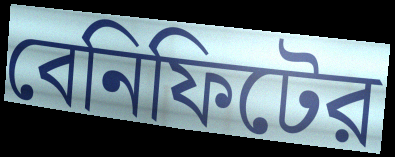
বেনিফিটের